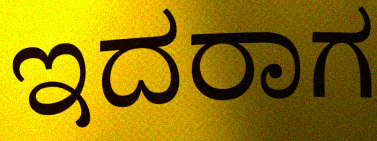
ಇದರಾಗ